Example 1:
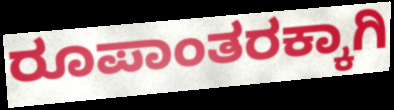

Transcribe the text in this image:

ರೂಪಾಂತರಕ್ಕಾಗಿ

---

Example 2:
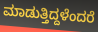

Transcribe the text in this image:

ಮಾಡುತ್ತಿದ್ದಳೆಂದರೆ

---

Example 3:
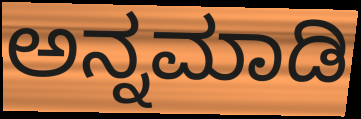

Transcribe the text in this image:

ಅನ್ನಮಾಡಿ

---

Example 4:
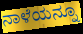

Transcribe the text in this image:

ನಾಳೆಯನ್ನೂ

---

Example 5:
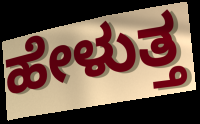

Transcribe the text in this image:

ಹೇಳುತ್ತ